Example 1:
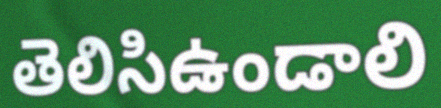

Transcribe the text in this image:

తెలిసిఉండాలి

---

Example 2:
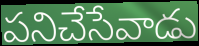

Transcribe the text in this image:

పనిచేసేవాడు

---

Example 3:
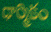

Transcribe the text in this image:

ధార్మికం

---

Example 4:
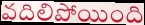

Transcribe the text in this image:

వదిలిపోయింది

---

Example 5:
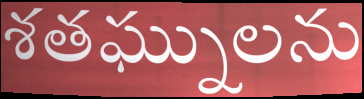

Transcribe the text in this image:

శతఘ్నులను